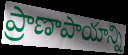
ప్రాణాపాయాన్ని